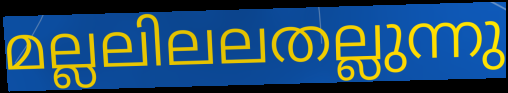
മല്ലലിലലതല്ലുന്നു